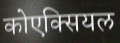
कोएक्सियल